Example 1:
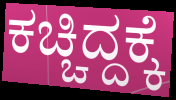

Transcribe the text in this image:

ಕಚ್ಚಿದ್ದಕ್ಕೆ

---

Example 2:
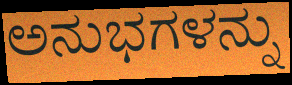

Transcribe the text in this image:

ಅನುಭಗಳನ್ನು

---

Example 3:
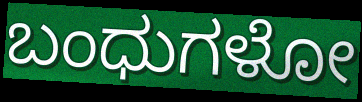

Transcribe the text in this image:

ಬಂಧುಗಳೋ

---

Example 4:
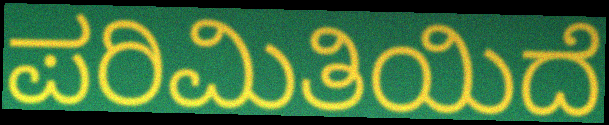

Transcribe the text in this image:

ಪರಿಮಿತಿಯಿದೆ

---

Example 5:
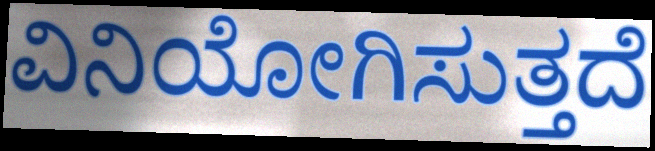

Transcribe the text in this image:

ವಿನಿಯೋಗಿಸುತ್ತದೆ